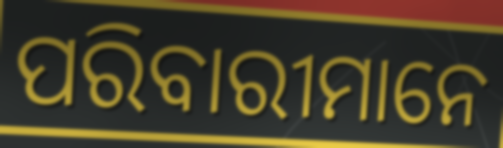
ପରିବାରୀମାନେ